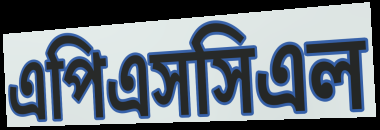
এপিএসসিএল